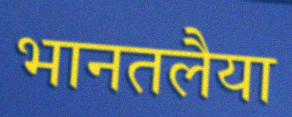
भानतलैया